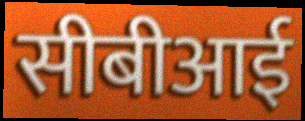
सीबीआई